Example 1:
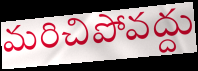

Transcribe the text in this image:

మరిచిపోవద్దు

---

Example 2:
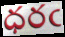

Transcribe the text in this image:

ధరఁ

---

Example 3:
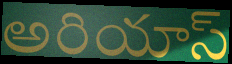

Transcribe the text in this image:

అరియాస్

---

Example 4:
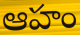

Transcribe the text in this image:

ఆహం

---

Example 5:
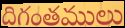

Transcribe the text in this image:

దిగంతములు